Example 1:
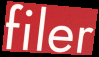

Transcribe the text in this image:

filer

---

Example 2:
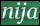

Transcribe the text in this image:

nija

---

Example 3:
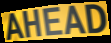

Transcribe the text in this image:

AHEAD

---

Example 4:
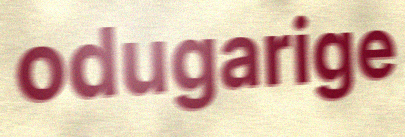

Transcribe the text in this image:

odugarige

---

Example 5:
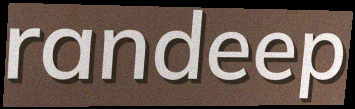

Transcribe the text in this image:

randeep